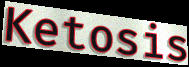
Ketosis